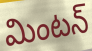
మింటన్